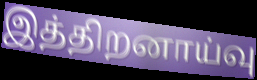
இத்திறனாய்வு